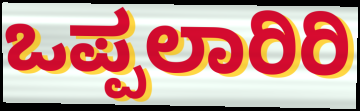
ಒಪ್ಪಲಾರಿರಿ